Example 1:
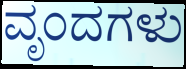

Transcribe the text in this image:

ವೃಂದಗಳು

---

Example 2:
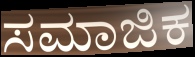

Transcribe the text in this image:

ಸಮಾಜಿಕ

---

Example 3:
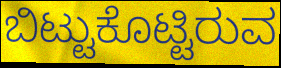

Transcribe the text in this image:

ಬಿಟ್ಟುಕೊಟ್ಟಿರುವ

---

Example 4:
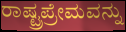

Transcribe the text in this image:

ರಾಷ್ಟ್ರಪ್ರೇಮವನ್ನು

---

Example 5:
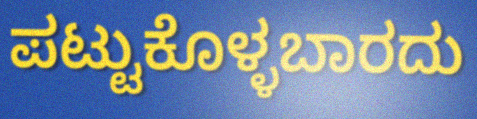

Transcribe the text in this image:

ಪಟ್ಟುಕೊಳ್ಳಬಾರದು